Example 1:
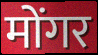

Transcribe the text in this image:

मोंगर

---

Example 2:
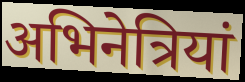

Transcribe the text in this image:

अभिनेत्रियां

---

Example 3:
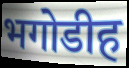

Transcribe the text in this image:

भगोडीह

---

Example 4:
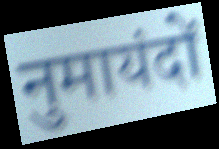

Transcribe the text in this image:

नुमायंदों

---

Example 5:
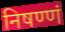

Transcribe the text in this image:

निषण्णं